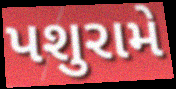
પશુરામે